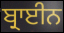
ਬ੍ਰਾਈਨ